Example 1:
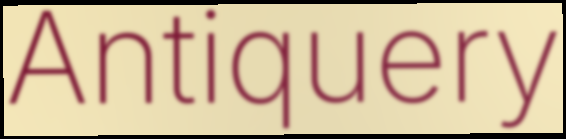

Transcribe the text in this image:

Antiquery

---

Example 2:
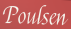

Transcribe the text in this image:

Poulsen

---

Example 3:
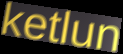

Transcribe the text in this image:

ketlun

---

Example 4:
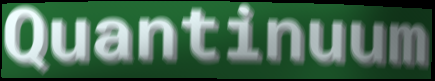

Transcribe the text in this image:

Quantinuum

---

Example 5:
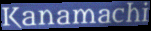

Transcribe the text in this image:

Kanamachi